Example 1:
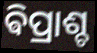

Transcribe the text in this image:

ଵିପ୍ରାଶ୍ଚ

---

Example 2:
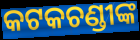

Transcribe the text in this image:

କଟକଚଣ୍ଡୀଙ୍କ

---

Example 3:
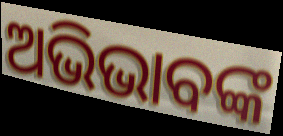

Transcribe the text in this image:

ଅଭିଭାବଙ୍କ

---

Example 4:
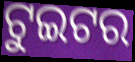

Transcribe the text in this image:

ଟୁଇଟର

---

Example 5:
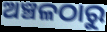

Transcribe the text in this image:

ଅଞ୍ଚଳଠାରୁ